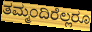
ತಮ್ಮಂದಿರೆಲ್ಲರೂ